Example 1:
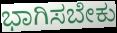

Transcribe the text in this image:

ಭಾಗಿಸಬೇಕು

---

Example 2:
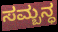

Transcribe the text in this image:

ಸಮ್ಬನ್ಧ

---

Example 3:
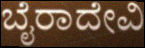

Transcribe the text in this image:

ಬೈರಾದೇವಿ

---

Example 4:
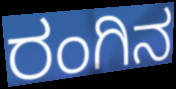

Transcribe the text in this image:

ರಂಗಿನ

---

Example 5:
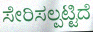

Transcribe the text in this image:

ಸೇರಿಸಲ್ಪಟ್ಟಿದೆ